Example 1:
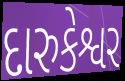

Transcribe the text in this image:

દારુકેશ્વર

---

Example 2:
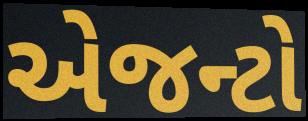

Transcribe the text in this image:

એજન્ટો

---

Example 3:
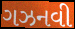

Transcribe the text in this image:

ગઝનવી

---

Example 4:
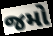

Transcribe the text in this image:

જમો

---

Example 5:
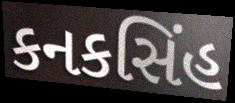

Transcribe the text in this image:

કનકસિંહ